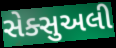
સેક્સુઅલી